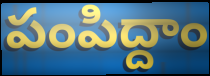
పంపిద్దాం